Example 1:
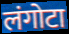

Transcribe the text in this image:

लंगोटा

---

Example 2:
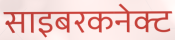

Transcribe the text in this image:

साइबरकनेक्ट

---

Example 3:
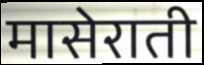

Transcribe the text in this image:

मासेराती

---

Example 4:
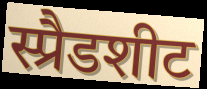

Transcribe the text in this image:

स्प्रैडशीट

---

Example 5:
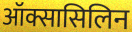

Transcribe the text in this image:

ऑक्सासिलिन